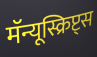
मॅन्यूस्क्रिप्ट्स